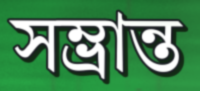
সম্ভ্ৰান্ত